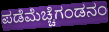
ಪಡೆಮೆಚ್ಚೆಗಂಡನಂ